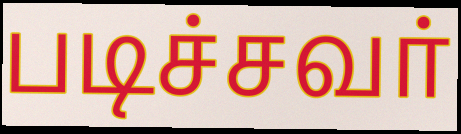
படிச்சவர்